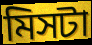
মিসটা